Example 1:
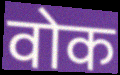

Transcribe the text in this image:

वोक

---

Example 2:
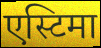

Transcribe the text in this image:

एस्टिमा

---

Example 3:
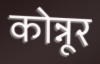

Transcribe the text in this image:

कोन्नूर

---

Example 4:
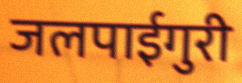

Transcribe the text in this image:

जलपाईगुरी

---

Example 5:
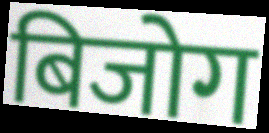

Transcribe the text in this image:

बिजोग